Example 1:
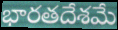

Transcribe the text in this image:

భారతదేశమే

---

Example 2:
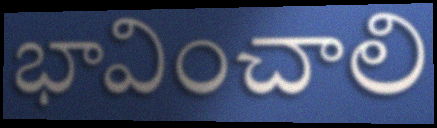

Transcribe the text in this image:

భావించాలి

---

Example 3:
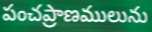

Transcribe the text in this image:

పంచప్రాణములును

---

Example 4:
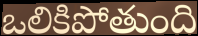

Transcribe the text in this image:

ఒలికిపోతుంది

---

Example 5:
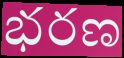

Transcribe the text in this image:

భరణ